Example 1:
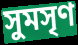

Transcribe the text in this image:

সুমসৃণ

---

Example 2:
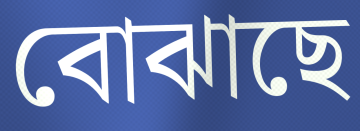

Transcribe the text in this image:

বোঝাছে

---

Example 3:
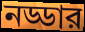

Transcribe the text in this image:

নড্ডার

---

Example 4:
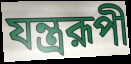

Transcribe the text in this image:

যন্ত্ররূপী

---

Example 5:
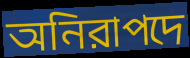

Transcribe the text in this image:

অনিরাপদে